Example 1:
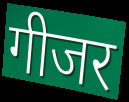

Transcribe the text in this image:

गीजर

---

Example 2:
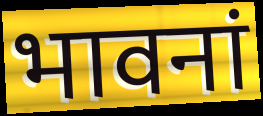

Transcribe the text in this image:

भावनां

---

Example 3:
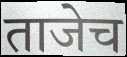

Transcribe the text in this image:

ताजेच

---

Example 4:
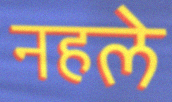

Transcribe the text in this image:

नहले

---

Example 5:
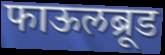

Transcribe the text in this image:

फाऊलब्रूड